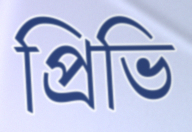
প্রিভি